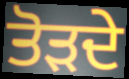
ਤੋੜਦੇ